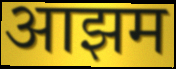
आझम